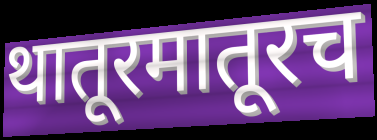
थातूरमातूरच